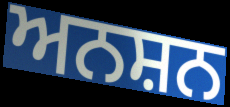
ਅਨਸ਼ਨ